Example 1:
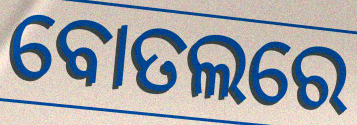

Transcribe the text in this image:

ବୋତଲରେ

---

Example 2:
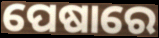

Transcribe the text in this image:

ପେଷାରେ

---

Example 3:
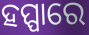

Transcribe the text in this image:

ହପ୍ପାରେ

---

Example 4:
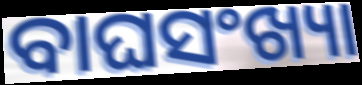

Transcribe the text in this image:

ବାଘସଂଖ୍ୟା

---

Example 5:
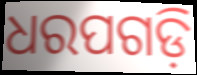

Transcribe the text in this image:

ଧରପଗଡ଼ି